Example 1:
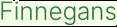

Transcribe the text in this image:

Finnegans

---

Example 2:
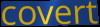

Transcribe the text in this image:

covert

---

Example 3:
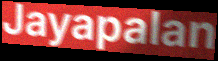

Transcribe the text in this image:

Jayapalan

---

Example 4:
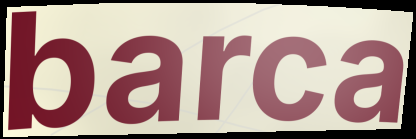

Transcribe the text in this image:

barca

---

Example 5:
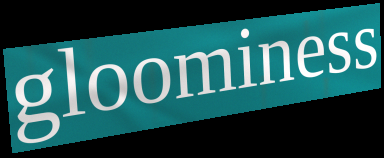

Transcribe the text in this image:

gloominess